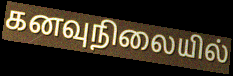
கனவுநிலையில்